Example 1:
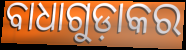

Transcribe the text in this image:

ବାଧାଗୁଡ଼ାକର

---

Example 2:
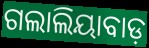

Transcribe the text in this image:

ଗଲାଲିୟାବାଡ଼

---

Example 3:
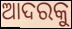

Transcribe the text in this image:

ଆଦରକୁ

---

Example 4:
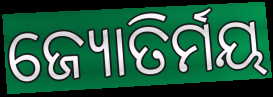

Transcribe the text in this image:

ଜ୍ୟୋତିର୍ମୟ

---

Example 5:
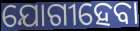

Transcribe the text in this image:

ଯୋଗୀହେବା